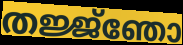
തജ്ജ്ഞോ